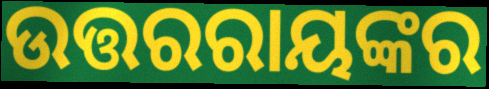
ଉତ୍ତରରାୟଙ୍କର